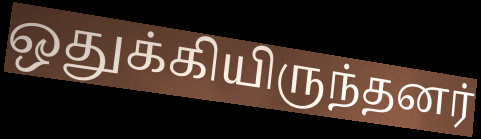
ஒதுக்கியிருந்தனர்